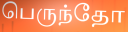
பெருந்தோ